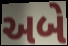
અબે